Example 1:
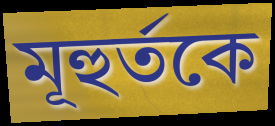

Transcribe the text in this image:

মূহুর্তকে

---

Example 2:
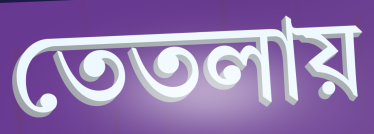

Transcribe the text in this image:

তেতলায়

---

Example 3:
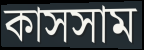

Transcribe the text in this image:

কাসসাম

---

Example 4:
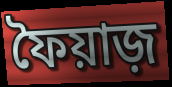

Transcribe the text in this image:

ফৈয়াজ়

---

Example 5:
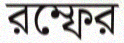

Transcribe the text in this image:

রম্ফের